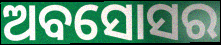
ଅବସୋସର